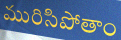
మురిసిపోతాం